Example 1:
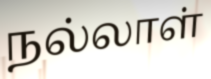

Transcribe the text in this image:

நல்லாள்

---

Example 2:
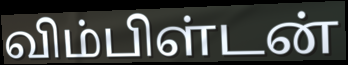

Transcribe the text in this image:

விம்பிள்டன்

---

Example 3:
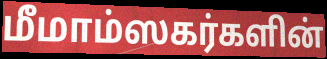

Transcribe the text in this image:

மீமாம்ஸகர்களின்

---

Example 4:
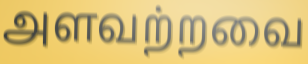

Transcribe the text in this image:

அளவற்றவை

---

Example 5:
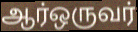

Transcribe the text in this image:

ஆர்ஒருவர்